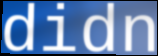
didn